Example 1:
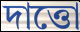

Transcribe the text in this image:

দাত্তো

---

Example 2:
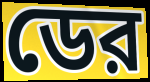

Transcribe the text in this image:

ডের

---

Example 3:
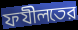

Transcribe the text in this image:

ফযীলতের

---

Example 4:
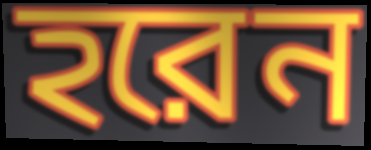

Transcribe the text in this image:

হরেন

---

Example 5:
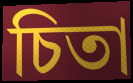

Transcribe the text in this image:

চিতা